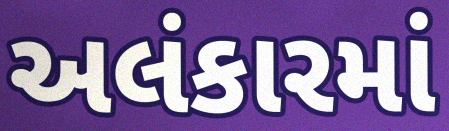
અલંકારમાં